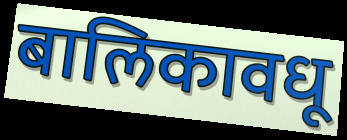
बालिकावधू